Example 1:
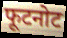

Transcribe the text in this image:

फूटनोट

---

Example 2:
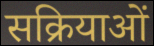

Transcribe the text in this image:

सक्रियाओं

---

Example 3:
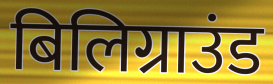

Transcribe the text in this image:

बिलिग्राउंड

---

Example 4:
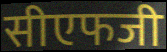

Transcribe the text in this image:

सीएफजी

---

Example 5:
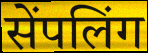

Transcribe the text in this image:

सेंपलिंग